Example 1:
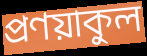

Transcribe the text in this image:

প্রণয়াকুল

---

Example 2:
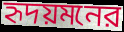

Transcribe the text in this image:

হৃদয়মনের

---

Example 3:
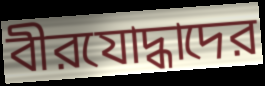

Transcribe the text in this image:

বীরযোদ্ধাদের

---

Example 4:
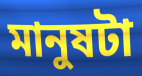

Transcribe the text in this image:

মানুষটা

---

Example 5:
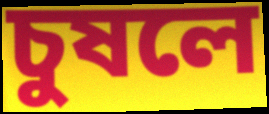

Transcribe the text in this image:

চুষলে